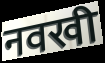
नवखी